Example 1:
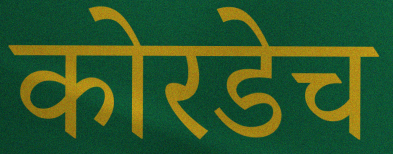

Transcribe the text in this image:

कोरडेच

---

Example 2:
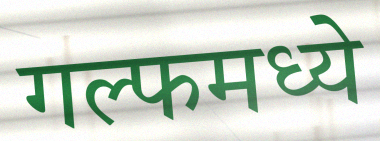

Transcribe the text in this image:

गल्फमध्ये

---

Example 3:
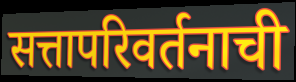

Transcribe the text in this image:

सत्तापरिवर्तनाची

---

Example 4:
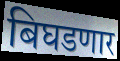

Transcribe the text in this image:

बिघडणार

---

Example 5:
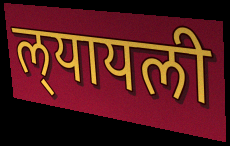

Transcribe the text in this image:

ल्यायली